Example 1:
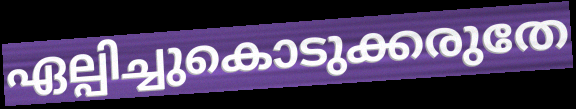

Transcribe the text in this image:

ഏല്പിച്ചുകൊടുക്കരുതേ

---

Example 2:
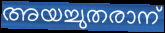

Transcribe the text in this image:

അയച്ചുതരാന്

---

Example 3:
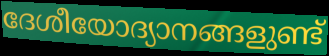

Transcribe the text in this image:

ദേശീയോദ്യാനങ്ങളുണ്ട്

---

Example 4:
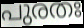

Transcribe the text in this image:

പുരതഃ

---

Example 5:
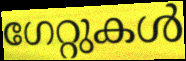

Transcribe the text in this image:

ഗേറ്റുകൾ